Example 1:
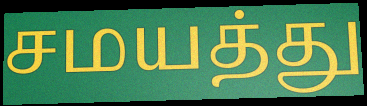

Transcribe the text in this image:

சமயத்து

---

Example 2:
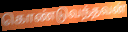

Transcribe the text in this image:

கொண்டுவந்தவன்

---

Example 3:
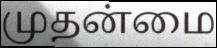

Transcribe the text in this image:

முதன்மை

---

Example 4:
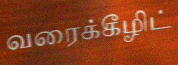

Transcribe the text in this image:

வரைக்கீழிட்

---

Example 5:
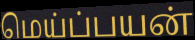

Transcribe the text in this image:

மெய்ப்பயன்